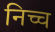
निच्च